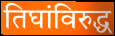
तिघांविरुद्ध